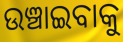
ଉଞ୍ଚାଇବାକୁ